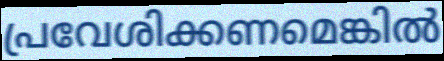
പ്രവേശിക്കണമെങ്കിൽ